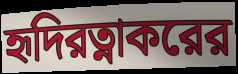
হৃদিরত্নাকরের